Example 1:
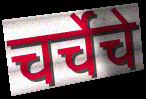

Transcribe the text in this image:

चर्चेचे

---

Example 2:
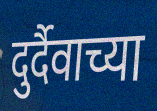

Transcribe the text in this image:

दुर्दैवाच्या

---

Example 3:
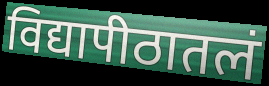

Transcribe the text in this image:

विद्यापीठातलं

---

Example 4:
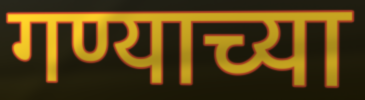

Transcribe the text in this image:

गण्याच्या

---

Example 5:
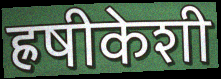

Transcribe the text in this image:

ह्रषीकेशी